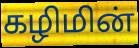
கழிமின்